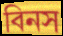
বিনস